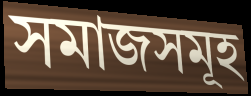
সমাজসমূহ